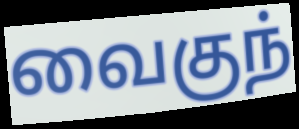
வைகுந்